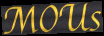
MOUs